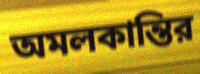
অমলকান্তির